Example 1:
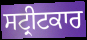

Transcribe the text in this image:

ਸਟ੍ਰੀਟਕਾਰ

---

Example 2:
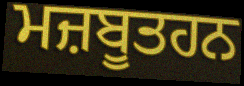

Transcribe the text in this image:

ਮਜ਼ਬੂਤਹਨ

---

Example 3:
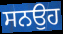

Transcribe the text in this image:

ਸਨਉਹ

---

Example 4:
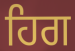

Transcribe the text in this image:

ਹਿਗ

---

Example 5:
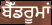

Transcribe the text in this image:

ਬੈੱਡਰੂਮਾਂ